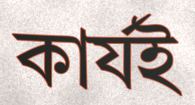
কাৰ্যই